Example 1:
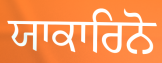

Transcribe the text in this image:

ਯਾਕਾਰਿਨੋ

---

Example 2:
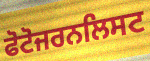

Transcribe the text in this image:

ਫੋਟੋਜਰਨਲਿਸਟ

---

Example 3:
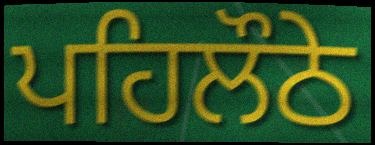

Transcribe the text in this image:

ਪਹਿਲੌਠੇ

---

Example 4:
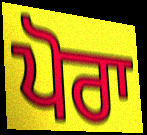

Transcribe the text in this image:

ਪੋਰਾ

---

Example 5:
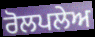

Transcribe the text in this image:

ਰੋਲਪਲੇਅ